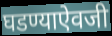
घडण्याऐवजी